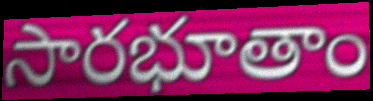
సారభూతాం